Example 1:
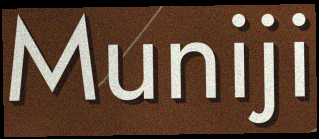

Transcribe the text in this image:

Muniji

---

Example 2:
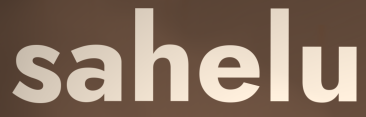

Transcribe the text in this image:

sahelu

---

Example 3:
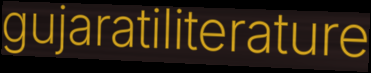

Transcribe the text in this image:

gujaratiliterature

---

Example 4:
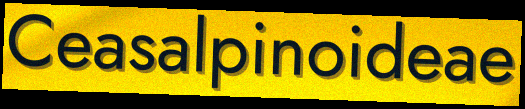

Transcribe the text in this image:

Ceasalpinoideae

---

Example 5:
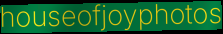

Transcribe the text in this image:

houseofjoyphotos